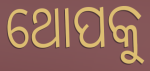
ଥୋପକୁ